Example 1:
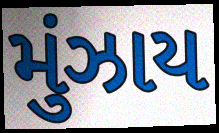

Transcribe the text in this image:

મુંઝાય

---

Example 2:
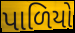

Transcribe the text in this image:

પાળિયો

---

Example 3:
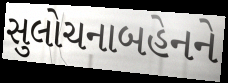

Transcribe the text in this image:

સુલોચનાબહેનને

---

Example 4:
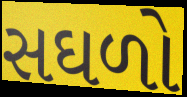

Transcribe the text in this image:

સઘળો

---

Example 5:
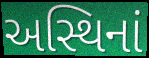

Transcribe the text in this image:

અસ્થિનાં